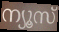
ന്യൂസ്